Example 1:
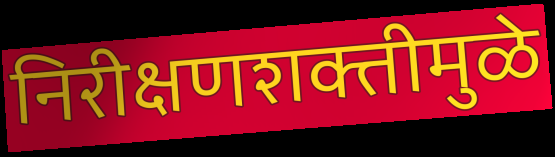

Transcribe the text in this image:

निरीक्षणशक्तीमुळे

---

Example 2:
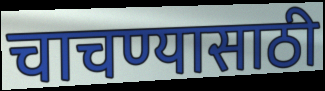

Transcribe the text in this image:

चाचण्यासाठी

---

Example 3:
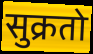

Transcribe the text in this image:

सुक्रतो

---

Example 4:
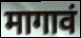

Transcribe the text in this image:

मागावं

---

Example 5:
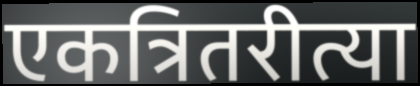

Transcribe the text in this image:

एकत्रितरीत्या